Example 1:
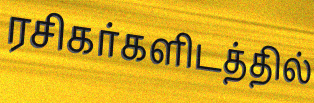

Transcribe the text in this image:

ரசிகர்களிடத்தில்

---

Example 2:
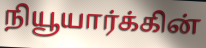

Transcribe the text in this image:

நியூயார்க்கின்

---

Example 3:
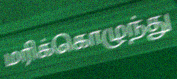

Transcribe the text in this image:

மரிக்கொழுந்து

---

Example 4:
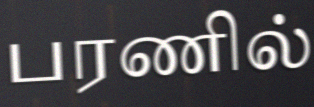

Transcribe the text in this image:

பரணில்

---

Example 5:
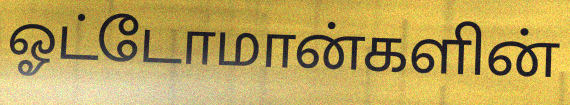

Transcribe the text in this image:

ஓட்டோமான்களின்